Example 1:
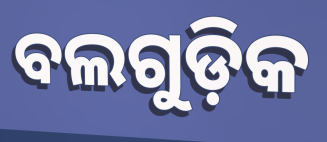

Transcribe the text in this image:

ବଲଗୁଡ଼ିକ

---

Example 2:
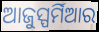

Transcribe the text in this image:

ଆଜୁସ୍ପର୍ମିଆର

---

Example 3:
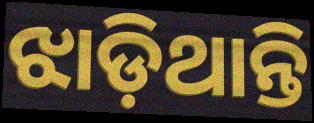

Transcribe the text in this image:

ଝାଡ଼ିଥାନ୍ତି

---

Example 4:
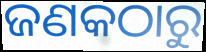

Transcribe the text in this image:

ଜଣକଠାରୁ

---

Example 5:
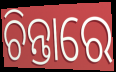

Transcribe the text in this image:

ଚିନ୍ତାରେ